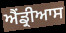
ਐਂਡ੍ਰੀਆਸ